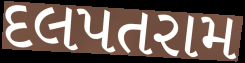
દલપતરામ